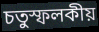
চতুস্ফলকীয়